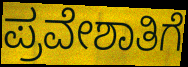
ಪ್ರವೇಶಾತಿಗೆ